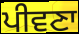
ਪੀਵਣਾ